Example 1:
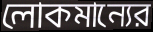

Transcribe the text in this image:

লোকমান্যের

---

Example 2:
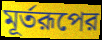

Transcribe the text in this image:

মূর্তরূপের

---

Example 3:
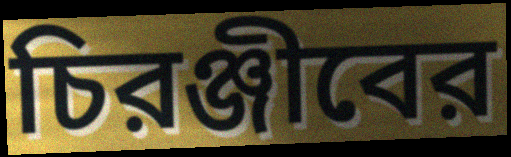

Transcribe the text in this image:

চিরঞ্জীবের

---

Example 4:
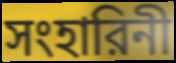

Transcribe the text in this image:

সংহারিনী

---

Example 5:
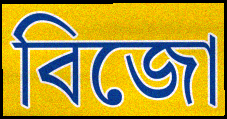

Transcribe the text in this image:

বিজো